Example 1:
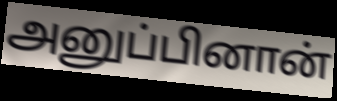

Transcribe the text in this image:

அனுப்பினான்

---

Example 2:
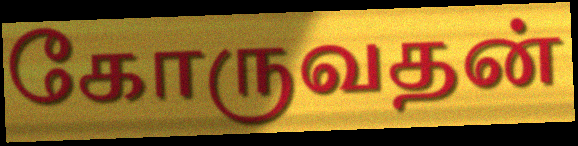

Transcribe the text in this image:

கோருவதன்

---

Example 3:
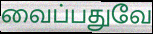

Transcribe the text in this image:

வைப்பதுவே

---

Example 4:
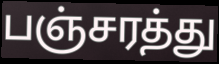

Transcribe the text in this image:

பஞ்சரத்து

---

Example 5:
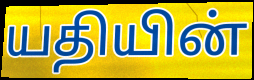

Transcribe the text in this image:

யதியின்